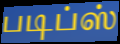
படிப்ஸ்